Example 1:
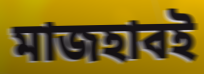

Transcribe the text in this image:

মাজহাবই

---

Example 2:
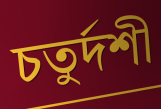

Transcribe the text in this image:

চতুর্দশী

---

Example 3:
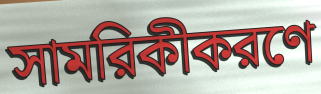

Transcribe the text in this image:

সামরিকীকরণে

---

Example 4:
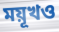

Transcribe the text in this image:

ময়ূখও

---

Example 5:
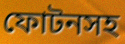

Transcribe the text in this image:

ফোটনসহ